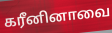
கரீனினாவை